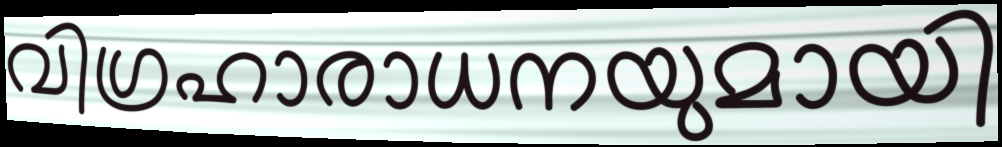
വിഗ്രഹാരാധനയുമായി